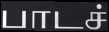
பாடச்